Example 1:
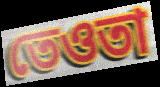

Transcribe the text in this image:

তেওতা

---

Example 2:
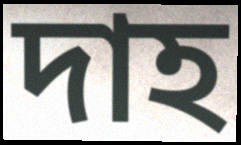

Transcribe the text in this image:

দাহ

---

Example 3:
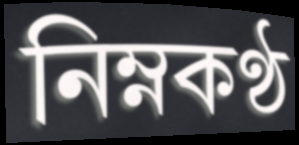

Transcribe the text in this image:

নিম্নকণ্ঠ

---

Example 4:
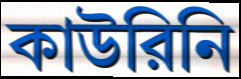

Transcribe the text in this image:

কাউরিনি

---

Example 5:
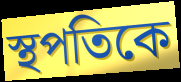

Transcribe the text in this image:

স্থপতিকে